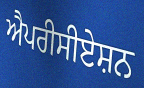
ਐਪਰੀਸੀਏਸ਼ਨ